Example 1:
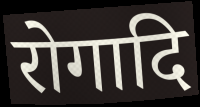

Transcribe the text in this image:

रोगादि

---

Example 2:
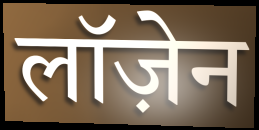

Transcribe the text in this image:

लॉज़ेन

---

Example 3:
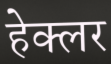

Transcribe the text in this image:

हेक्लर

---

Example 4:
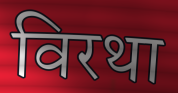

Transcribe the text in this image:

विरथा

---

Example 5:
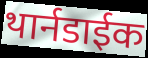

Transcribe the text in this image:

थार्नडाईक